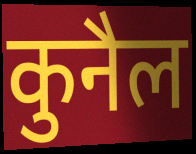
कुनैल